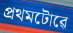
প্ৰথমটোৱে